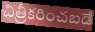
చిత్రీకరించబడే